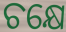
ଚକ୍ଷେ